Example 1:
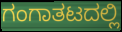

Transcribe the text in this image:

ಗಂಗಾತಟದಲ್ಲಿ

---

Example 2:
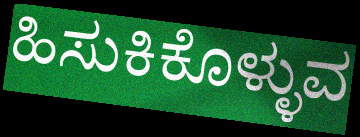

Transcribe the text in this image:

ಹಿಸುಕಿಕೊಳ್ಳುವ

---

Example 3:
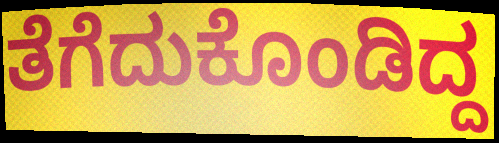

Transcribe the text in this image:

ತೆಗೆದುಕೊಂಡಿದ್ದ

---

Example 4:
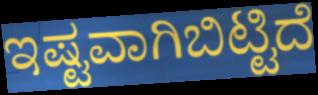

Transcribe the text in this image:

ಇಷ್ಟವಾಗಿಬಿಟ್ಟಿದೆ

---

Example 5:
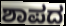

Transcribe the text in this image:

ಶಾಪದ